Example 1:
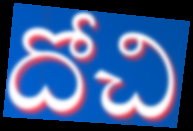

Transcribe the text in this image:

దోచి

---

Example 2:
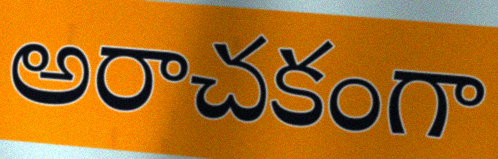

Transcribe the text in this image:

అరాచకంగా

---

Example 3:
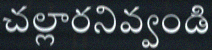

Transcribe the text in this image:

చల్లారనివ్వండి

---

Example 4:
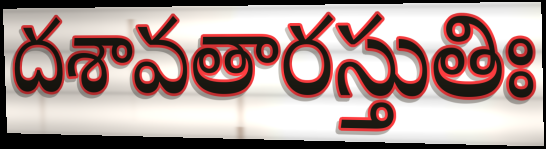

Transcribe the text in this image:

దశావతారస్తుతిః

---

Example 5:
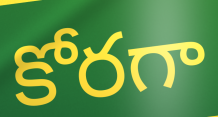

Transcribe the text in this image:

కోరగా